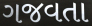
ગજવતા